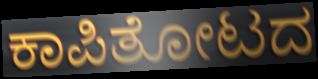
ಕಾಪಿತೋಟದ